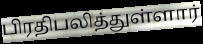
பிரதிபலித்துள்ளார்